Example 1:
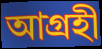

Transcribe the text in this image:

আগ্রহী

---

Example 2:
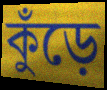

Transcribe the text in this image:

কুঁড়ে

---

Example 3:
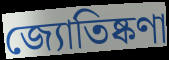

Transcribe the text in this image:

জ্যোতিষ্কণা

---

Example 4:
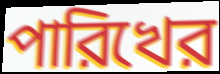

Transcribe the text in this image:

পারিখের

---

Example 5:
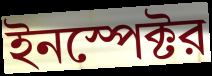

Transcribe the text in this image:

ইনস্পেক্টর